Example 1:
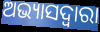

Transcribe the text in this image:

ଅଭ୍ୟାସଦ୍ୱାରା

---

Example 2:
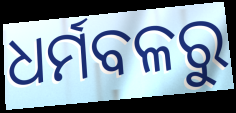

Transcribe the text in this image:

ଧର୍ମବଳରୁ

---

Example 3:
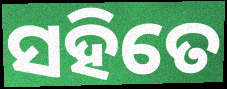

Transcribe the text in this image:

ସହିତେ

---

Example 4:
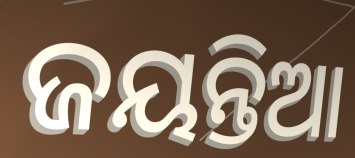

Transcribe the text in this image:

ଜୟନ୍ତିଆ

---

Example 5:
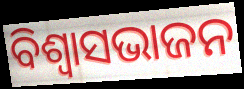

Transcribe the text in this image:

ବିଶ୍ୱାସଭାଜନ